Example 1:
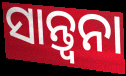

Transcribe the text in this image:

ସାନ୍ତ୍ବନା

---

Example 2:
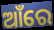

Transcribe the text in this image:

ଆଁରେ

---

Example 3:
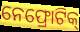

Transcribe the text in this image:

ନେଫ୍ରୋଟିକ୍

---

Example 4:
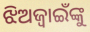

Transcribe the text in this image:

ଝିଅଜ୍ୱାଇଁଙ୍କୁ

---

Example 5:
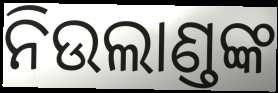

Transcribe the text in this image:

ନିଉଲାଣ୍ଡଙ୍କ